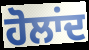
ਹੋਲਾਂਦ